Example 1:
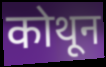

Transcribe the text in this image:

कोथून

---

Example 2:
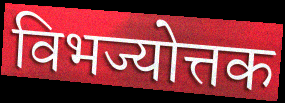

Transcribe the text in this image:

विभज्योत्तक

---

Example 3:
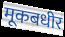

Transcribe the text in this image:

मूकबधीर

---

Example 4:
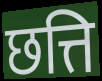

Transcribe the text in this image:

छत्ति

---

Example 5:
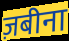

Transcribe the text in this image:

ज़बीना